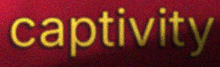
captivity